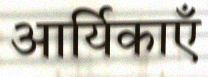
आर्यिकाएँ